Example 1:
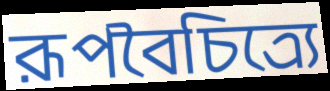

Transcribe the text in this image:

রূপবৈচিত্র্যে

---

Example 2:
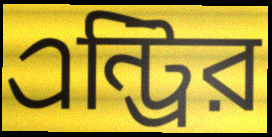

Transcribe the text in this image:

এন্ট্রির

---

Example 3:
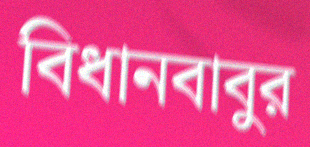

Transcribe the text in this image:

বিধানবাবুর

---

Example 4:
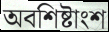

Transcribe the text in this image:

অবশিষ্টাংশ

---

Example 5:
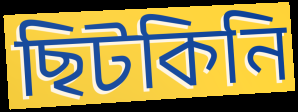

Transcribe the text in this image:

ছিটকিনি